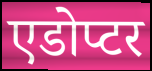
एडोप्टर